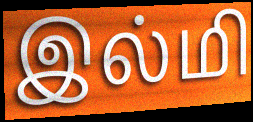
இல்மி